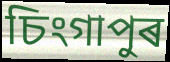
চিংগাপুৰ